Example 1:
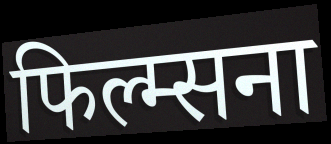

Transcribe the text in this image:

फिल्म्सना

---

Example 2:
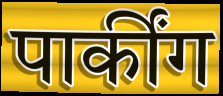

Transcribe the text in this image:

पार्कींग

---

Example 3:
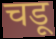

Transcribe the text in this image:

चडू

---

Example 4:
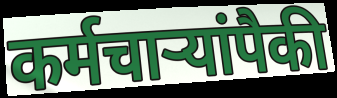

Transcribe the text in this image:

कर्मचाऱ्यांपैकी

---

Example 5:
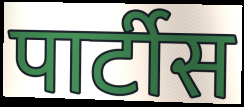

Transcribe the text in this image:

पार्टीस